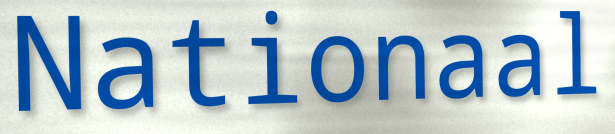
Nationaal